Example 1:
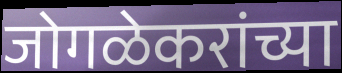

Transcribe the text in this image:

जोगळेकरांच्या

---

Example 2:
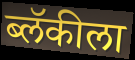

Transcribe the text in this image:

ब्लॅकीला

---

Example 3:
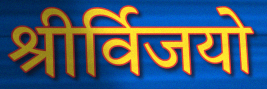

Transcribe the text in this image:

श्रीर्विजयो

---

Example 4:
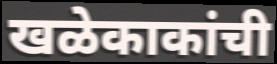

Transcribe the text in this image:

खळेकाकांची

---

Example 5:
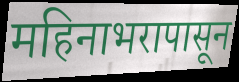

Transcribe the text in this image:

महिनाभरापासून